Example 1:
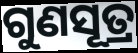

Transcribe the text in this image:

ଗୁଣସୂତ୍ର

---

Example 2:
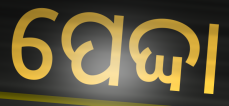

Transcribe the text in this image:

ପେଦ୍ଦା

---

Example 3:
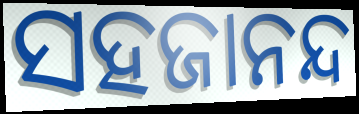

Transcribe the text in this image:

ସହଜାନନ୍ଦ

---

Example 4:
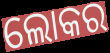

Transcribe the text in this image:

ଲୋକର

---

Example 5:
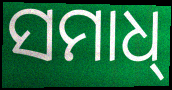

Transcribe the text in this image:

ସମାଧ୍